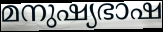
മനുഷ്യഭാഷ